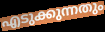
എടുക്കുന്നതും